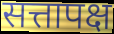
सत्तापक्ष